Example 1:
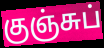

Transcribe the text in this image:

குஞ்சுப்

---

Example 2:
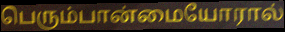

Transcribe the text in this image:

பெரும்பான்மையோரால்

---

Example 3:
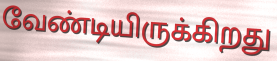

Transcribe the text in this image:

வேண்டியிருக்கிறது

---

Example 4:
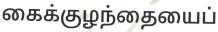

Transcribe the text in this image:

கைக்குழந்தையைப்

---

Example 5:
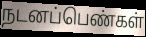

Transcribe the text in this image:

நடனப்பெண்கள்